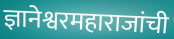
ज्ञानेश्वरमहाराजांची